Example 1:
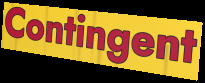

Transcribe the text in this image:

Contingent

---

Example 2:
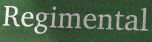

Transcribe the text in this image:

Regimental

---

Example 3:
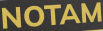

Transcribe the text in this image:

NOTAM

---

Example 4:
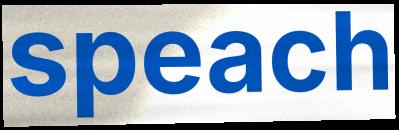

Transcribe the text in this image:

speach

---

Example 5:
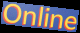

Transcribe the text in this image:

Online